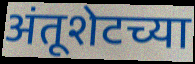
अंतूशेटच्या